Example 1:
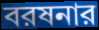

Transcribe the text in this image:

বরষনার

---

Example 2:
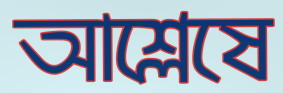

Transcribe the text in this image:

আশ্লেষে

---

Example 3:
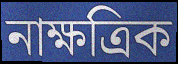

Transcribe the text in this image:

নাক্ষত্রিক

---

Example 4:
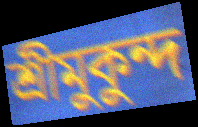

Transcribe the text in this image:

শ্রীমুকুন্দ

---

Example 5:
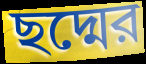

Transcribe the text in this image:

ছদ্মের